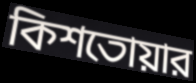
কিশতোয়ার